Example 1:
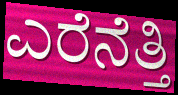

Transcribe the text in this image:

ಎರೆನೆತ್ತಿ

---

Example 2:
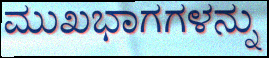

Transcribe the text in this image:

ಮುಖಭಾಗಗಳನ್ನು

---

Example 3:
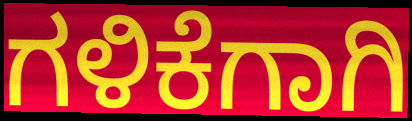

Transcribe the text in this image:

ಗಳಿಕೆಗಾಗಿ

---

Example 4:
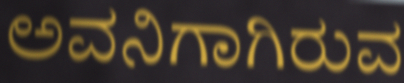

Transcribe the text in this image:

ಅವನಿಗಾಗಿರುವ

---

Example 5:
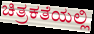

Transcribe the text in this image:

ಚಿತ್ರಕತೆಯಲ್ಲಿ